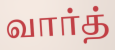
வார்த்